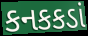
કનકકડાં